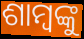
ଶାମ୍ବଙ୍କୁ